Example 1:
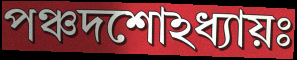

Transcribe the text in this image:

পঞ্চদশোঽধ্যায়ঃ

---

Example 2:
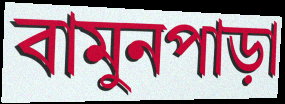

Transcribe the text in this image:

বামুনপাড়া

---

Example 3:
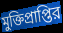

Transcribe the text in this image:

মুক্তিপ্রাপ্তির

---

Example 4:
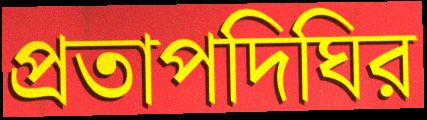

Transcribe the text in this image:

প্রতাপদিঘির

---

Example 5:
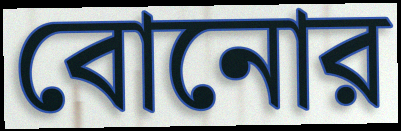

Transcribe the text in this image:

বোনোর